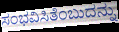
ಸಂಭವಿಸಿತೆಂಬುದನ್ನು